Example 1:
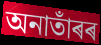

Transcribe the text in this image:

অনাতাঁৰৰ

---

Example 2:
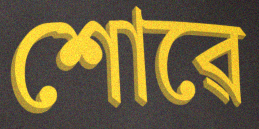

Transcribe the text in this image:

শোৱে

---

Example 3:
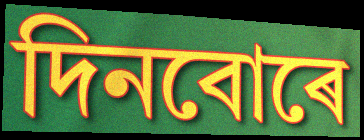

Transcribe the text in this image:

দিনবোৰে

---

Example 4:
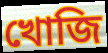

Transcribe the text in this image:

খোজি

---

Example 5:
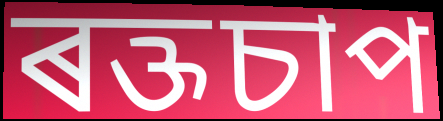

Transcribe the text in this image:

ৰক্তচাপ